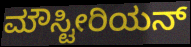
ಮೌಸ್ಟೀರಿಯನ್